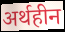
अर्थहीन